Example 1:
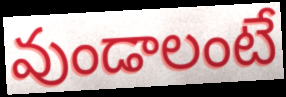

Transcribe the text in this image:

వుండాలంటే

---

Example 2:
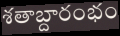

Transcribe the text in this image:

శతాబ్దారంభం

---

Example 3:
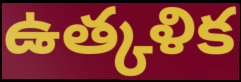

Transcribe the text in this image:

ఉత్కళిక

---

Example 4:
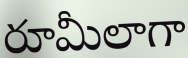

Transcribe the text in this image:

రూమీలాగా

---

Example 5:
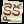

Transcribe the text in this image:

కైక